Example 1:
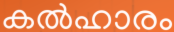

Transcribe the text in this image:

കൽഹാരം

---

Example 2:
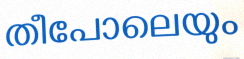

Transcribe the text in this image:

തീപോലെയും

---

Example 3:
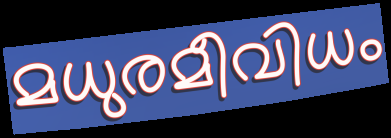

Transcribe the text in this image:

മധുരമീവിധം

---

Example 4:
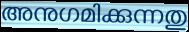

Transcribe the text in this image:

അനുഗമിക്കുന്നതു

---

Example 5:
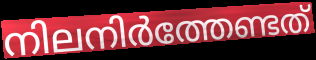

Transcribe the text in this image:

നിലനിർത്തേണ്ടത്